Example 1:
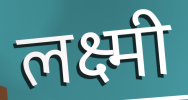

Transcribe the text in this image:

लक्ष्‍मी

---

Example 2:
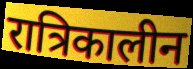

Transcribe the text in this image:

रात्रिकालीन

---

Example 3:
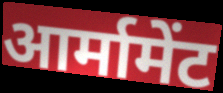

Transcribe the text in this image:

आर्मामेंट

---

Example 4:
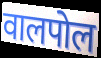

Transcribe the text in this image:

वालपोल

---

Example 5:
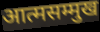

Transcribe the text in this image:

आत्मसम्मुख